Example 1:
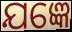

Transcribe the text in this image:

ଯଜ୍ଞେ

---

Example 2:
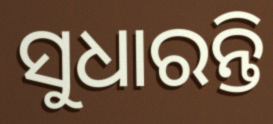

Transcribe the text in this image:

ସୁଧାରନ୍ତି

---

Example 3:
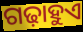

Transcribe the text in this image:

ଗଢ଼ାହୁଏ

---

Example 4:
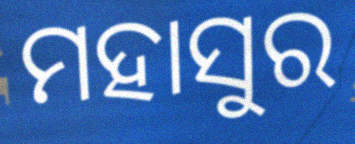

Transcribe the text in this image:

ମହାସୁର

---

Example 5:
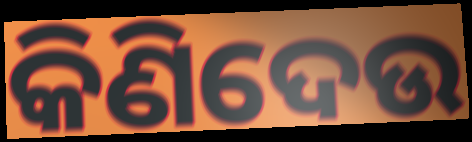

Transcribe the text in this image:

କିଣିଦେଉ